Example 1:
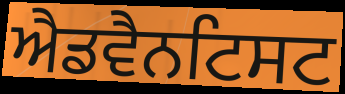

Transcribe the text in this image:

ਐਡਵੈਨਟਿਸਟ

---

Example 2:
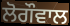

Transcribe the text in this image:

ਲੋਗੌਵਾਲ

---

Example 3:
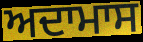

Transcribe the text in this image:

ਅਦਾਮਾਸ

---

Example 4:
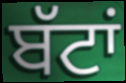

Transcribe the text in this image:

ਬੱਟਾਂ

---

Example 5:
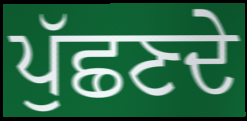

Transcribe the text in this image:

ਪੁੱਛਣਦੇ